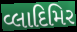
વ્લાદિમિર